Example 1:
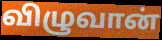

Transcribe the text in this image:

விழுவான்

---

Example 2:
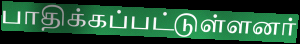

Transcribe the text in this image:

பாதிக்கப்பட்டுள்ளனர்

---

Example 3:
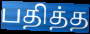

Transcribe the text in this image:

பதித்த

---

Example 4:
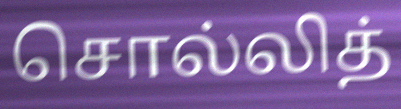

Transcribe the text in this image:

சொல்லித்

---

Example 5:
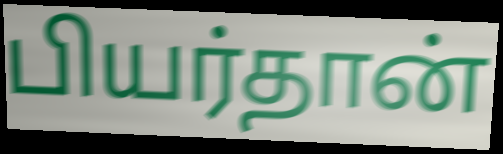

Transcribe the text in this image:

பியர்தான்